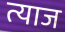
त्याज